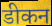
डीकन